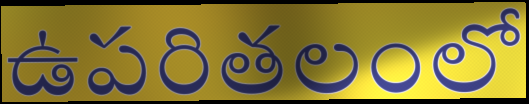
ఉపరితలంలో